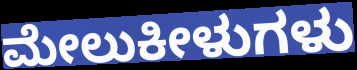
ಮೇಲುಕೀಳುಗಳು